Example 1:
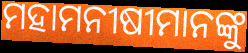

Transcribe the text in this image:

ମହାମନୀଷୀମାନଙ୍କୁ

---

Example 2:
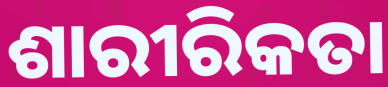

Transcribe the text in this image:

ଶାରୀରିକତା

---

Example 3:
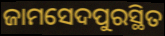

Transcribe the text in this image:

ଜାମସେଦପୁରସ୍ଥିତ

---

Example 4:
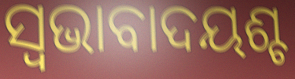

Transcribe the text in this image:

ସ୍ଵଭାବାଦୟଶ୍ଚ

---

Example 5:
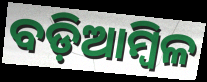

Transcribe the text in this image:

ବଡ଼ିଆମ୍ବିଳ